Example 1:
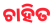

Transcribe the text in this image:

ଚାହିତ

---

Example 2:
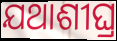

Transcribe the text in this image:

ଯଥାଶୀଘ୍ର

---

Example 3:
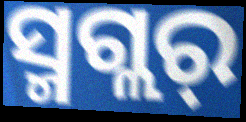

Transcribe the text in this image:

ସ୍ମଗ୍ଲର୍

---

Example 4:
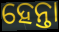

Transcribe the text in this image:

ହେନ୍ତା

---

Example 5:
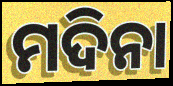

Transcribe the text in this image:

ମଦିନା